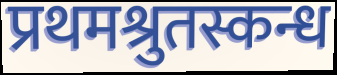
प्रथमश्रुतस्कन्ध